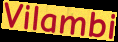
Vilambi